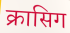
क्रासिग